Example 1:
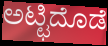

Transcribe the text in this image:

ಅಟ್ಟಿದೊಡೆ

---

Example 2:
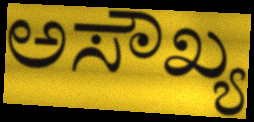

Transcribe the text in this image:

ಅಸೌಖ್ಯ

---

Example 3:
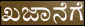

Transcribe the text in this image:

ಖಜಾನೆಗೆ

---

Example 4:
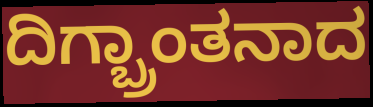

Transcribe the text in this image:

ದಿಗ್ಬ್ರಾಂತನಾದ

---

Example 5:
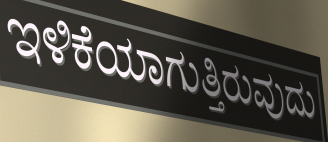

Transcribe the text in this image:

ಇಳಿಕೆಯಾಗುತ್ತಿರುವುದು